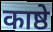
काष्ठे